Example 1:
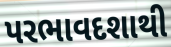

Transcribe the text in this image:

પરભાવદશાથી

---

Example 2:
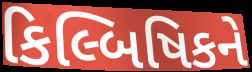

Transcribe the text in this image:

કિલ્બિષિકને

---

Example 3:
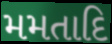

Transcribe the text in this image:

મમતાદિ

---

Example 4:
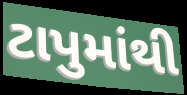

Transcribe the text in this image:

ટાપુમાંથી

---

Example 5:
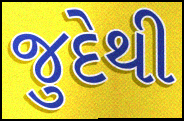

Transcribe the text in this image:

જુદેથી